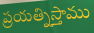
ప్రయత్నిస్తాము